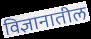
विज्ञानातील